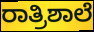
ರಾತ್ರಿಶಾಲೆ